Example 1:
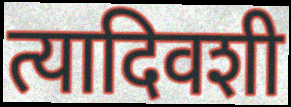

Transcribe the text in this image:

त्यादिवशी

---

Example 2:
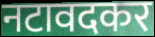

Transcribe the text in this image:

नटावदकर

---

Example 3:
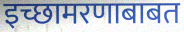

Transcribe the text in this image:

इच्छामरणाबाबत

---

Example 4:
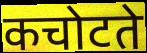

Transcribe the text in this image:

कचोटते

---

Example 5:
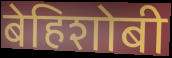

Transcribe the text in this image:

बेहिशोबी